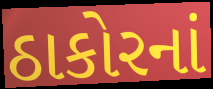
ઠાકોરનાં